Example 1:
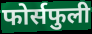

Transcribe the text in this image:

फोर्सफुली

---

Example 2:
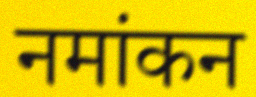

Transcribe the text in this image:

नमांकन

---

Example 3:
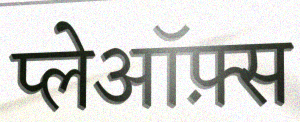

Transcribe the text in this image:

प्लेऑफ़्स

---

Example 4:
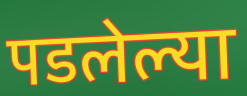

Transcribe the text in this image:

पडलेल्या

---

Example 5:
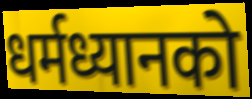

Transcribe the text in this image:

धर्मध्यानको